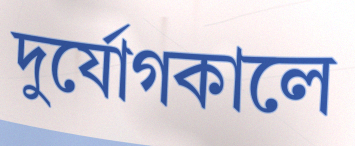
দুর্যোগকালে